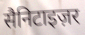
सैनिटाइज़र